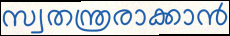
സ്വതന്ത്രരാക്കാൻ